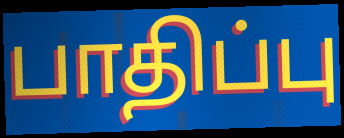
பாதிப்பு